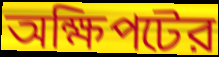
অক্ষিপটের